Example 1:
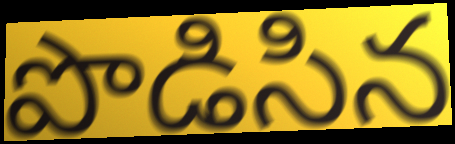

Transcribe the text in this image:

పొడిసిన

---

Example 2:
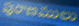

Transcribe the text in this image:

పురాణములు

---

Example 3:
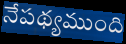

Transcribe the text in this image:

నేపథ్యముంది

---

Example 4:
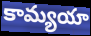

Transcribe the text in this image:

కామ్యయా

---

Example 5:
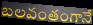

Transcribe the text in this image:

బలవంతంగానే